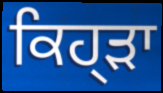
ਕਿਹ੍ੜਾ